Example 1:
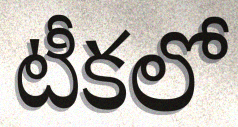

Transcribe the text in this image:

టీకలో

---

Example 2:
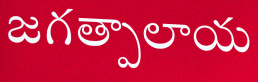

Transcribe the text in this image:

జగత్పాలాయ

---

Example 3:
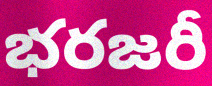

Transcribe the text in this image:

భరజరీ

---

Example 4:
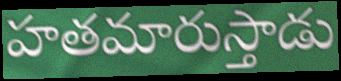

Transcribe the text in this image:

హతమారుస్తాడు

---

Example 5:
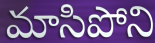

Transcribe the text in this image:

మాసిపోని